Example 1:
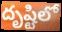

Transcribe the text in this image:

దృష్టిలో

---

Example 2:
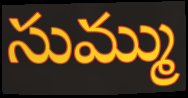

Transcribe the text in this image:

సుమ్ము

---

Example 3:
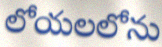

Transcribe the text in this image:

లోయలలోను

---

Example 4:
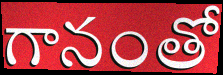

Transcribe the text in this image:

గానంతో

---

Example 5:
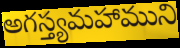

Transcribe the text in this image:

అగస్త్యమహాముని